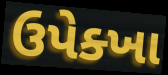
ઉપેક્ખા